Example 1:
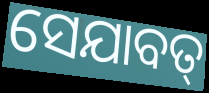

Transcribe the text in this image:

ସେଯାବତ୍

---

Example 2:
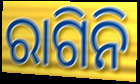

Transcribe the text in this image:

ରାଗିନି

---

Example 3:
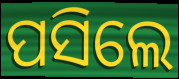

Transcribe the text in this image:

ପସିଲେ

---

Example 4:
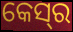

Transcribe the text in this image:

କେସ୍‌ର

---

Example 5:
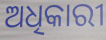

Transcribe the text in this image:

ଅଧିକାରୀ